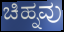
ಚಿಹ್ನವು